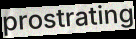
prostrating